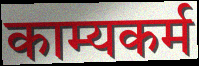
काम्यकर्म